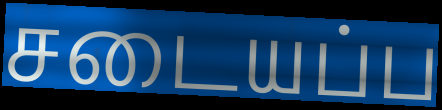
சடையப்ப